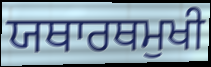
ਯਥਾਰਥਮੁਖੀ